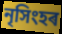
নৃসিংহৰ